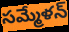
సమ్మేళన్